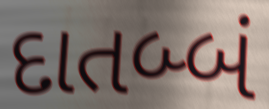
દાતબ્બં